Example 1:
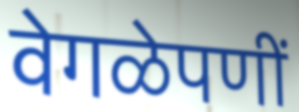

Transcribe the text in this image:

वेगळेपणीं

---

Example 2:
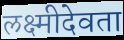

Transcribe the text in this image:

लक्ष्मीदेवता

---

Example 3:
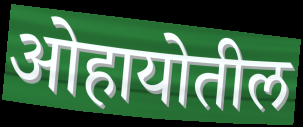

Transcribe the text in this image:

ओहायोतील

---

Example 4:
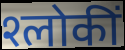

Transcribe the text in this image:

श्लोकीं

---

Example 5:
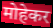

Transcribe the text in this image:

मोहेकर